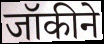
जॉकीने